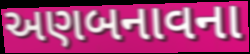
અણબનાવના